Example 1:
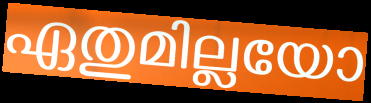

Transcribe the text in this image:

ഏതുമില്ലയോ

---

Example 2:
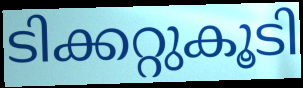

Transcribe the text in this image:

ടിക്കറ്റുകൂടി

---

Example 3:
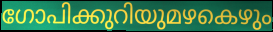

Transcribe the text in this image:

ഗോപിക്കുറിയുമഴകെഴും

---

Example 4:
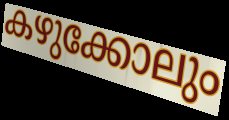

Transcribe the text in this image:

കഴുക്കോലും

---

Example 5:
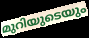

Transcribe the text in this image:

മുറിയുടെയും